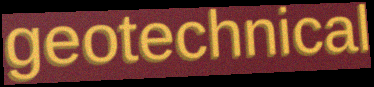
geotechnical